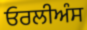
ਓਰਲੀਅੰਸ